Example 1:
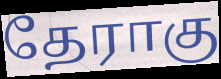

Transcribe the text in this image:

தேராகு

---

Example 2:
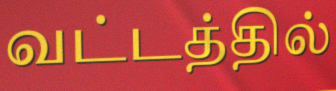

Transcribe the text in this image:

வட்டத்தில்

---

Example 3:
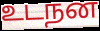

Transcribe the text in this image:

உடநன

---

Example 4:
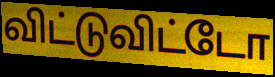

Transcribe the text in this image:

விட்டுவிட்டோ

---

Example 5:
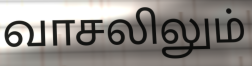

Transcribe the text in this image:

வாசலிலும்